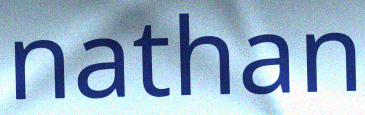
nathan